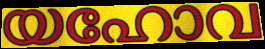
യഹോവ